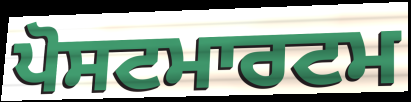
ਪੋਸਟਮਾਰਟਮ